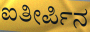
ಐತೀರ್ಪಿನ